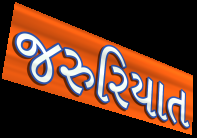
જરુરિયાત